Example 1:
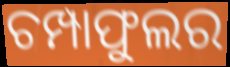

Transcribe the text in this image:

ଚମ୍ପାଫୁଲର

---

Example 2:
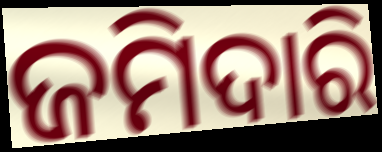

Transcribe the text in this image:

ଜମିଦାରି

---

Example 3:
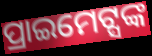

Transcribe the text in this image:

ପ୍ରାଇମେଟ୍ସଙ୍କ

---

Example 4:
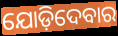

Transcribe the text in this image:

ଯୋଡ଼ିଦେବାର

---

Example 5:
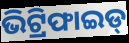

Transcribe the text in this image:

ଭିଟ୍ରିଫାଇଡ୍